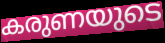
കരുണയുടെ